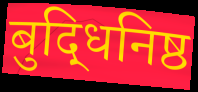
बुद्धिनिष्ठ